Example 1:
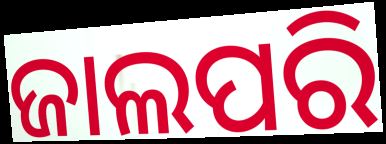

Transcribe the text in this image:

ଜାଲପରି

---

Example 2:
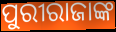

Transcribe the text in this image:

ପୁରୀରାଜାଙ୍କ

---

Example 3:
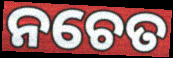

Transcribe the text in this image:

ନଚେତ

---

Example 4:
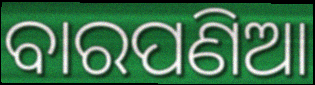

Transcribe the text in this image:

ବାରପଣିଆ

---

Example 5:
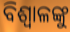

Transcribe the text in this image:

ବିଶ୍ୱାଳଙ୍କୁ